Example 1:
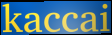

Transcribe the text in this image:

kaccai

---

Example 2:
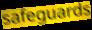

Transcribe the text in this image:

safeguards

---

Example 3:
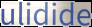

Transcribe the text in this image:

ulidide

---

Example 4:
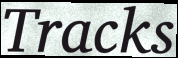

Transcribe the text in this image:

Tracks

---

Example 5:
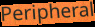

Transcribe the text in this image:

Peripheral